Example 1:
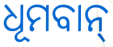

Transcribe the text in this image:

ଧୂମବାନ୍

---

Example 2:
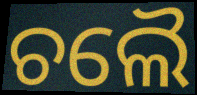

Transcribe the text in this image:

ଚଲୈ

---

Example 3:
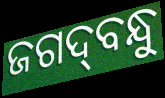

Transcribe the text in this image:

ଜଗଦ୍‌ବନ୍ଧୁ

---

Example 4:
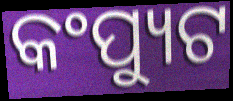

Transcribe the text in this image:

କଂପ୍ୟୁଟ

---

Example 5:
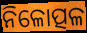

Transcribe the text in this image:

ନିଳୋତ୍ପଳ